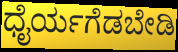
ಧೈರ್ಯಗೆಡಬೇಡಿ